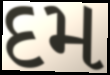
દમ